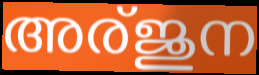
അര്ജുന